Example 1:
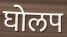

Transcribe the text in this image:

घोलप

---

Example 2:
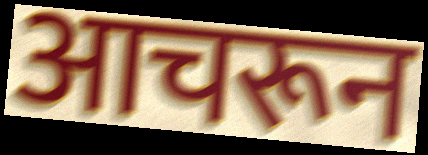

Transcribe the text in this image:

आचरून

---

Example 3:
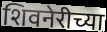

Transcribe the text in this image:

शिवनेरीच्या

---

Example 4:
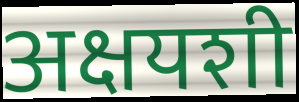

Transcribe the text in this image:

अक्षयशी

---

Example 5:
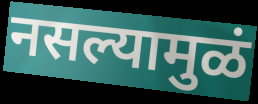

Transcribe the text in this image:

नसल्यामुळं